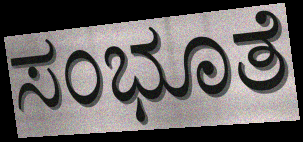
ಸಂಭೂತೆ